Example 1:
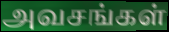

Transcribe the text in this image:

அவசங்கள்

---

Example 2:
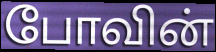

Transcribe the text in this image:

போவின்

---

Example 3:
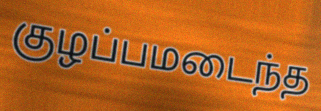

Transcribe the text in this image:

குழப்பமடைந்த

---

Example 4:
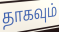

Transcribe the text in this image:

தாகவும்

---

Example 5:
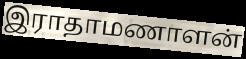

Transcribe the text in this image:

இராதாமணாளன்